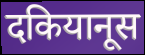
दकियानूस